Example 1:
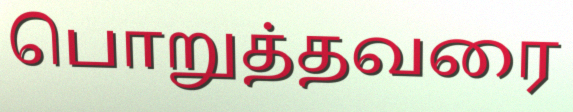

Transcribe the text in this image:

பொறுத்தவரை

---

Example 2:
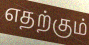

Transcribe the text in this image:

எதற்கும்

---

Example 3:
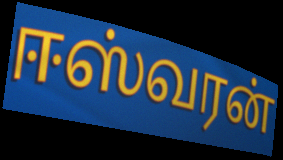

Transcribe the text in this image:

ஈஸ்வரன்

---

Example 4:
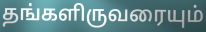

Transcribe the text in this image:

தங்களிருவரையும்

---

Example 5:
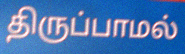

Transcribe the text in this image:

திருப்பாமல்